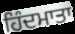
ਹਿੰਦਮਾਤਾ